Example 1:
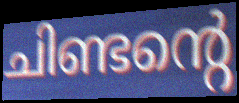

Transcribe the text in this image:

ചിണ്ടന്റെ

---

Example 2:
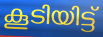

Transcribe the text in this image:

കൂടിയിട്ട്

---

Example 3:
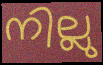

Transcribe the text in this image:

നില്ലു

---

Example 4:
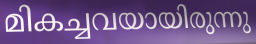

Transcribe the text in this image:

മികച്ചവയായിരുന്നു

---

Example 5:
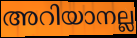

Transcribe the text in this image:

അറിയാനല്ല